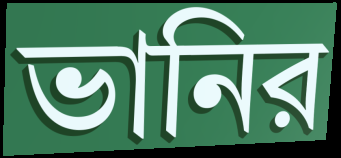
ভানির